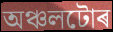
অঞ্চলটোৰ